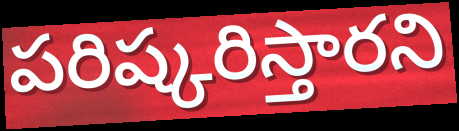
పరిష్కరిస్తారని